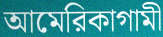
আমেরিকাগামী